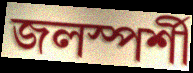
জলস্পর্শী